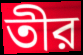
তীর